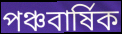
পঞ্চবার্ষিক